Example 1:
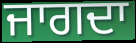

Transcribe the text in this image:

ਜਾਗਦਾ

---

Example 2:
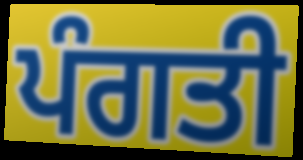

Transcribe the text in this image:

ਪੰਗਤੀ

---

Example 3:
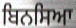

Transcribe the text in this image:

ਬਿਨਸਿਆ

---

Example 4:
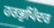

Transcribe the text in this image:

ਹਰਭੁਪਿੰਦਰ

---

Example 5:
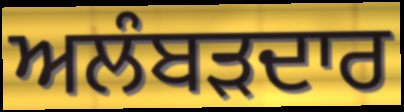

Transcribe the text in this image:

ਅਲੰਬੜਦਾਰ